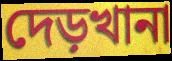
দেড়খানা